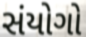
સંયોગો